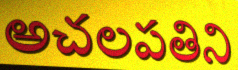
అచలపతిని